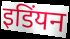
इडिंयन